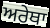
ਅਰੇਥਾ